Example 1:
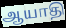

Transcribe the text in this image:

ஆயாதி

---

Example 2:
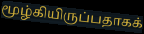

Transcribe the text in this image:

மூழ்கியிருப்பதாகக்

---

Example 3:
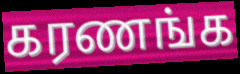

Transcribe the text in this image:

கரணங்க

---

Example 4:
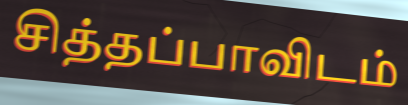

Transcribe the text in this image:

சித்தப்பாவிடம்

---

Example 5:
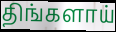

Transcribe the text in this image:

திங்களாய்